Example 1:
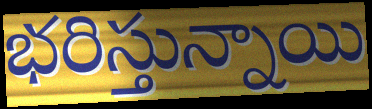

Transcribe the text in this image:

భరిస్తున్నాయి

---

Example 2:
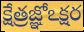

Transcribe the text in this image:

క్షేత్రజ్ఞోఽక్షర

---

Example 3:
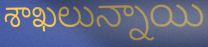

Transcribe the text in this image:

శాఖలున్నాయి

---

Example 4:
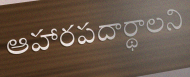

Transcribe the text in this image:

ఆహారపదార్థాలని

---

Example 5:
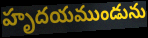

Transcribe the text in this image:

హృదయముండును